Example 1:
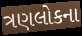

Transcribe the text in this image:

ત્રણલોકના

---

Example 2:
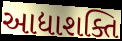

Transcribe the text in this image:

આદ્યાશક્તિ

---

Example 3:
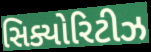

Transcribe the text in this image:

સિક્યોરિટીઝ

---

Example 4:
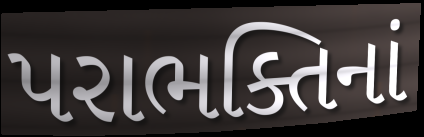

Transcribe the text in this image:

પરાભક્તિનાં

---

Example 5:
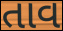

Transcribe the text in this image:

તાવ